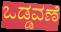
ಒಡ್ಡವಣೆ